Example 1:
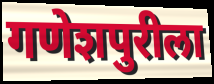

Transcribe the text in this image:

गणेशपुरीला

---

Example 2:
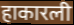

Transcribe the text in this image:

हाकारली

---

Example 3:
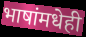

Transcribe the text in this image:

भाषांमधेही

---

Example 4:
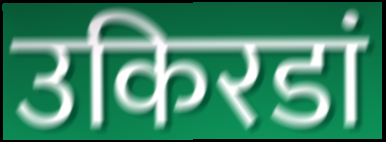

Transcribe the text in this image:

उकिरडां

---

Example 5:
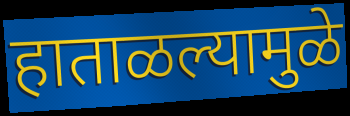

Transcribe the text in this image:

हाताळल्यामुळे